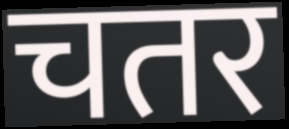
चतर